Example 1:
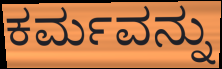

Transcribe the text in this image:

ಕರ್ಮವನ್ನು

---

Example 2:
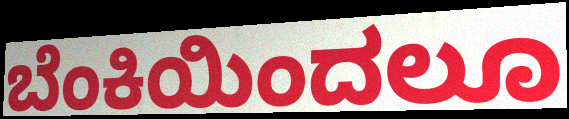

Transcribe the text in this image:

ಬೆಂಕಿಯಿಂದಲೂ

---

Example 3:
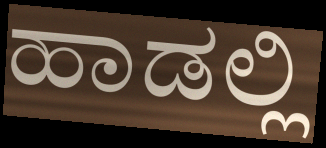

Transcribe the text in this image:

ಹಾಡಲ್ಲಿ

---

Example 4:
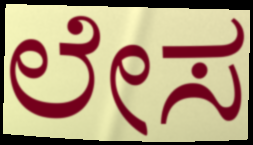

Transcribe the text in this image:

ಲೇಸ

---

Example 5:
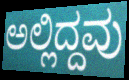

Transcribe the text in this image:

ಅಲ್ಲಿದ್ದವು